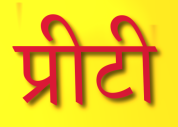
प्रीटी